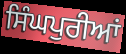
ਸਿੰਘਪੁਰੀਆਂ